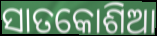
ସାତକୋଶିଆ